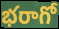
భరాగో